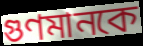
গুণমানকে